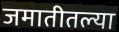
जमातीतल्या